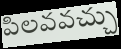
పిలవవచ్చు